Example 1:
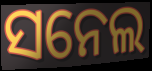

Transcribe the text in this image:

ସନେଲ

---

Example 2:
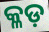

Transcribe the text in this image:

କ୍ଳଡ଼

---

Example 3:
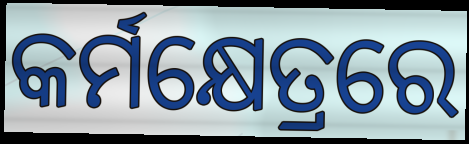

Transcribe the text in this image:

କର୍ମକ୍ଷେତ୍ରରେ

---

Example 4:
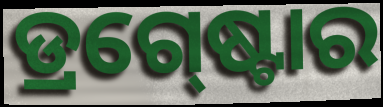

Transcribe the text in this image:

ଡ୍ରଗ୍‍ଷ୍ଟୋର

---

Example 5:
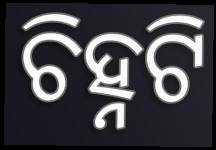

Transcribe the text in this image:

ଚିହ୍ନଟି